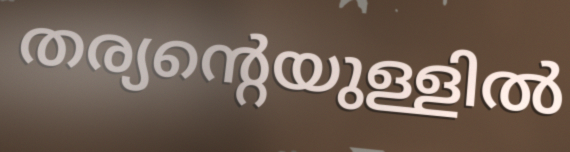
തര്യന്റെയുള്ളിൽ